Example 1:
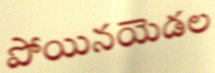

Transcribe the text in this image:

పోయినయెడల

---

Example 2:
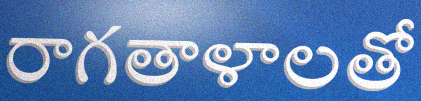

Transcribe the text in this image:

రాగతాళాలతో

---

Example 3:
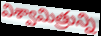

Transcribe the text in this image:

విశ్వామిత్రున్ని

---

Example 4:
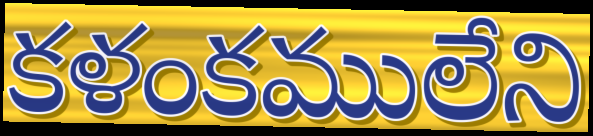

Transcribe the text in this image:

కళంకములేని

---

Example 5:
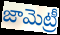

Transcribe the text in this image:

జామెట్రీ